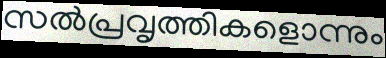
സൽപ്രവൃത്തികളൊന്നും